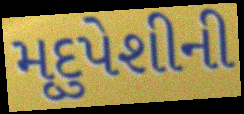
મૃદુપેશીની